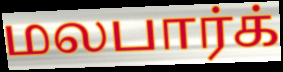
மலபார்க்